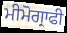
ਮੀਮੋਗ੍ਰਾਫੀ